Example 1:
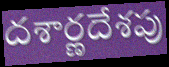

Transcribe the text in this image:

దశార్ణదేశపు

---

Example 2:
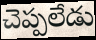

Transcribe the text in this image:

చెప్పలేడు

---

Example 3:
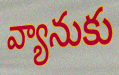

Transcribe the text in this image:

వ్యానుకు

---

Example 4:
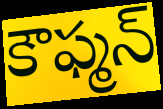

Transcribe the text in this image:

కౌఫ్మన్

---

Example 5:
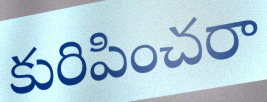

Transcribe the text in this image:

కురిపించరా